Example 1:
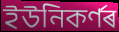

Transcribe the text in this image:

ইউনিকৰ্ণৰ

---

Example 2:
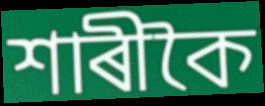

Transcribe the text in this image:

শাৰীকৈ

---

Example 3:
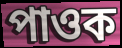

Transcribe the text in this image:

পাওক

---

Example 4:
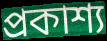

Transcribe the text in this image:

প্ৰকাশ্য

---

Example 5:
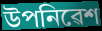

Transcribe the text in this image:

উপনিৱেশ